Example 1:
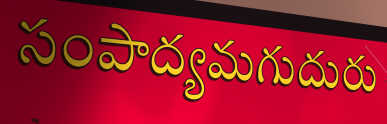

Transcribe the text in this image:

సంపాద్యమగుదురు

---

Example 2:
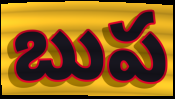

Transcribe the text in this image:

బుప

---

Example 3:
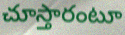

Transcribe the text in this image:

చూస్తారంటూ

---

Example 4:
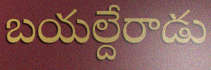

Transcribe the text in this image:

బయల్దేరాడు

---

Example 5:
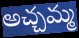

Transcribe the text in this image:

అచ్చమ్మ